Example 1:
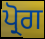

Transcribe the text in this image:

ਪ੍ਰੋਗ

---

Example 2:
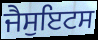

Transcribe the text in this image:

ਜੈਸੁਇਟਸ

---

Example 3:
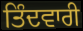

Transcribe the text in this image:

ਤਿੰਦਵਾਰੀ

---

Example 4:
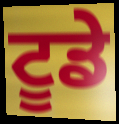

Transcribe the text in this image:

ਟੂਡੇ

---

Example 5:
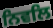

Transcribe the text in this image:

ਨਿਵਲਿ